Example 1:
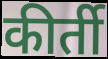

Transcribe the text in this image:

कीर्ती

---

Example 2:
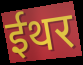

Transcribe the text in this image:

ईथर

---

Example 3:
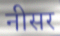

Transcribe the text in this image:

नीसर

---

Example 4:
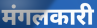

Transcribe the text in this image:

मंगलकारी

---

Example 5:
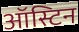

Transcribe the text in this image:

ऑस्टिन